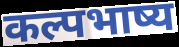
कल्पभाष्य